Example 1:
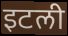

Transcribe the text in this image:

इटली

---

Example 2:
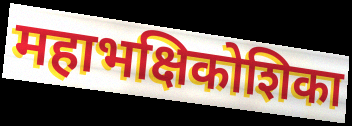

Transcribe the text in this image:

महाभक्षिकोशिका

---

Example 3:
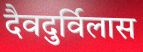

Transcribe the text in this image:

दैवदुर्विलास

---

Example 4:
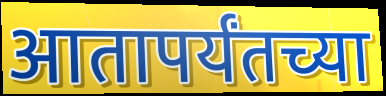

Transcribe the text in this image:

आतापर्यंतच्या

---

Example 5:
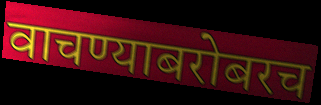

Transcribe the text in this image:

वाचण्याबरोबरच